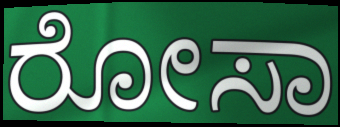
ರೋಸಾ